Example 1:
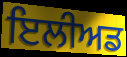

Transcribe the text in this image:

ਇਲੀਅਡ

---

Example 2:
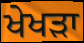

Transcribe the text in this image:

ਖੇਖੜਾ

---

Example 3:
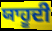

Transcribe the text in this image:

ਯਾਹੂਦੀ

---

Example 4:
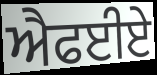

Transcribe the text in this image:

ਐਫਈਏ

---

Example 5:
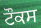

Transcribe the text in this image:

ਟੌਕਸ